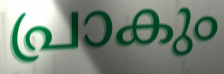
പ്രാകും